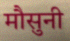
मौसुनी